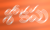
శోకపు